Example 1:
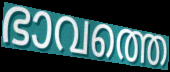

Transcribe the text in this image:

ഭാവത്തെ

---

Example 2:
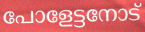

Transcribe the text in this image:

പോളേട്ടനോട്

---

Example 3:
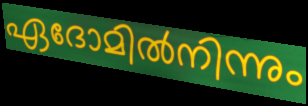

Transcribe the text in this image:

ഏദോമിൽനിന്നും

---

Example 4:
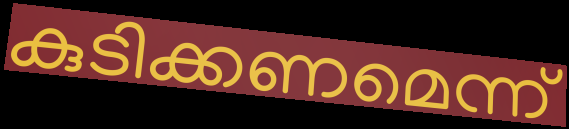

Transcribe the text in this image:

കുടിക്കണമെന്ന്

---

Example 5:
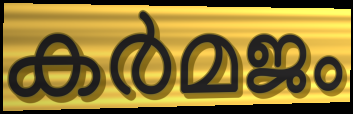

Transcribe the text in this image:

കർമജം